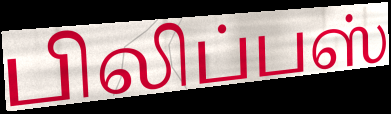
பிலிப்பஸ்